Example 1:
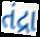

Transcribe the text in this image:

તંદ્રા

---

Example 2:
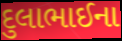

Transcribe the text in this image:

દુલાભાઈના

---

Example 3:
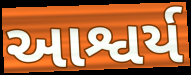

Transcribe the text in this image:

આશ્વર્ય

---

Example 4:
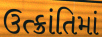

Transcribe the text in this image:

ઉત્ક્રાંતિમાં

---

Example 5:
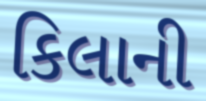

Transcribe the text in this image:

કિલાની